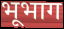
भूभाग